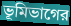
ভূমিভাগের